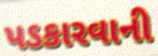
પડકારવાની